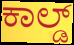
ಕಾಲ್ಡ್